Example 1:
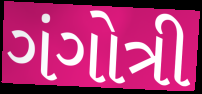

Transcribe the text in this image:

ગંગોત્રી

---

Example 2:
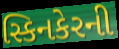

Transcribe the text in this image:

સ્કિનકેરની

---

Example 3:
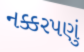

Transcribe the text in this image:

નક્કરપણું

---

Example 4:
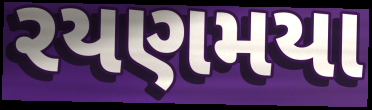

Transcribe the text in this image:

રયણમયા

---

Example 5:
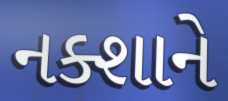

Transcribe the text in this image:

નક્શાને